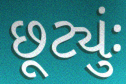
છૂટ્યુંઃ